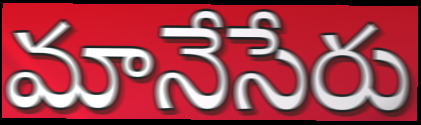
మానేసేరు